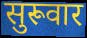
सुरूवार